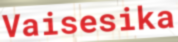
Vaisesika